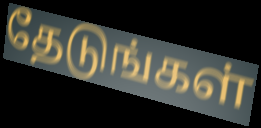
தேடுங்கள்